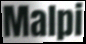
Malpi